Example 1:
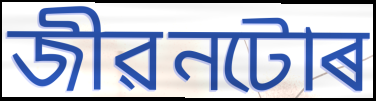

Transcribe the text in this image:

জীৱনটোৰ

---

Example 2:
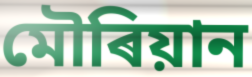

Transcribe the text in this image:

মৌৰিয়ান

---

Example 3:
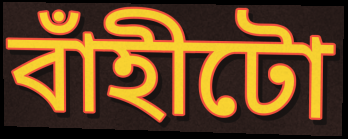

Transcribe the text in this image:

বাঁহীটো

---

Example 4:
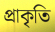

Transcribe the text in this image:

প্ৰাকৃতি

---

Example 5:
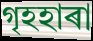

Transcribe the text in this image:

গৃহহাৰা